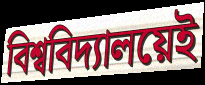
বিশ্ববিদ্যালয়েই